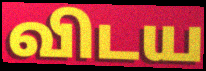
விடய